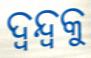
ଦ୍ଵନ୍ଦ୍ଵକୁ